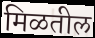
मिळतील